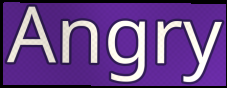
Angry